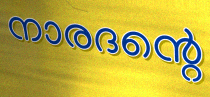
നാരദന്റെ